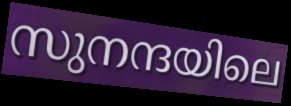
സുനന്ദയിലെ